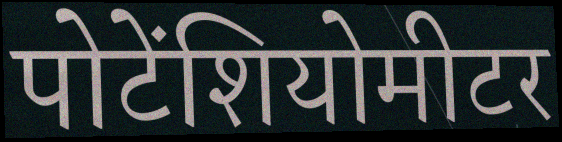
पोटेंशियोमीटर